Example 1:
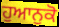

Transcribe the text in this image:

ਹੁਆਨੁਕੋ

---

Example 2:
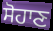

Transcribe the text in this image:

ਸੋਹਾਣ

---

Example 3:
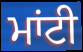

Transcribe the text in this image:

ਮਾਂਟੀ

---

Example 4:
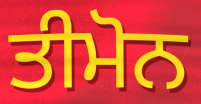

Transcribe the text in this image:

ਤੀਮੋਨ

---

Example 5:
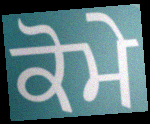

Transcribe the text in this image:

ਕੋਮੇ